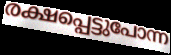
രക്ഷപ്പെട്ടുപോന്ന